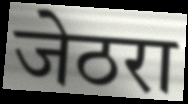
जेठरा